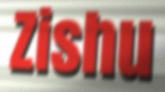
Zishu